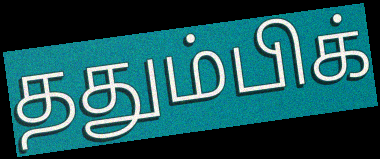
ததும்பிக்